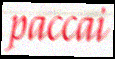
paccai